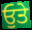
ਓੁਤੇ